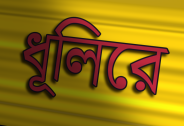
ধূলিরে